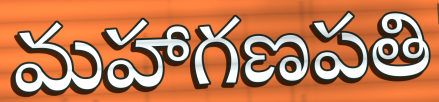
మహాగణపతి